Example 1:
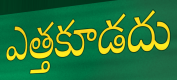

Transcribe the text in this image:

ఎత్తకూడదు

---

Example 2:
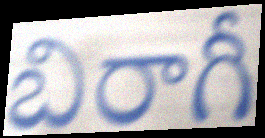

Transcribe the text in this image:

బిరాగీ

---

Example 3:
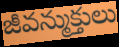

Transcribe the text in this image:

జీవన్ముక్తులు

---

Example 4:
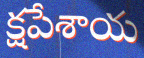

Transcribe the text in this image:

క్షపేశాయ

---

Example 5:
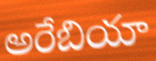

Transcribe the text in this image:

అరేబియా